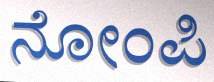
ನೋಂಪಿ